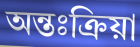
অন্তঃক্রিয়া